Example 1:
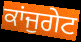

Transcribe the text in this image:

ਕਾਂਜੁਗੇਟ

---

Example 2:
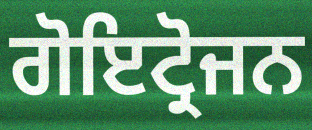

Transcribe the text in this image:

ਗੋਇਟ੍ਰੋਜਨ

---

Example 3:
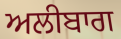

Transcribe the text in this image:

ਅਲੀਬਾਗ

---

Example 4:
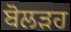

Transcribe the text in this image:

ਬੋਲੜਹ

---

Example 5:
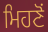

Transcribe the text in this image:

ਮਿਹਣੋਂ